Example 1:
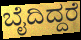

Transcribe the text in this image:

ಬೈದಿದ್ದರೆ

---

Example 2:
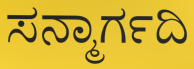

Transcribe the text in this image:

ಸನ್ಮಾರ್ಗದಿ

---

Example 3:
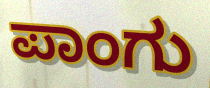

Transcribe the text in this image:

ಪಾಂಗು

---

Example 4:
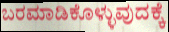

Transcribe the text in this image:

ಬರಮಾಡಿಕೊಳ್ಳುವುದಕ್ಕೆ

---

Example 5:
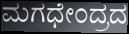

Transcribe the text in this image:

ಮಗಧೇಂದ್ರದ